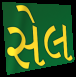
સેલ